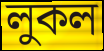
লুকল